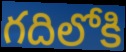
గదిలోకి